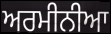
ਅਰਮੀਨੀਆ